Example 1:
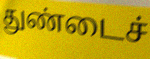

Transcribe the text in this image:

துண்டைச்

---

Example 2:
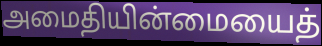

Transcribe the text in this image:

அமைதியின்மையைத்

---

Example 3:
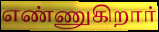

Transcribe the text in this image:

எண்ணுகிறார்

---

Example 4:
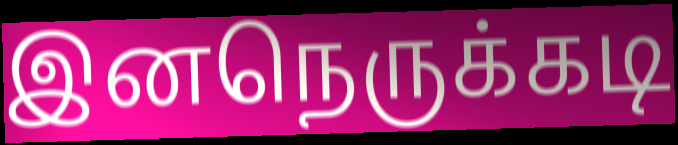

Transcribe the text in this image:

இனநெருக்கடி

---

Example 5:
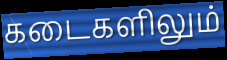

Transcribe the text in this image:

கடைகளிலும்